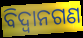
ବିଦ୍ଵାନଗଣ